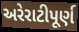
અરેરાટીપૂર્ણ